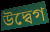
উদ্বেগ